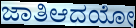
ಜಾತಿಆದಯೋ